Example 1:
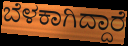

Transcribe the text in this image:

ಬೆಳಕಾಗಿದ್ದಾರೆ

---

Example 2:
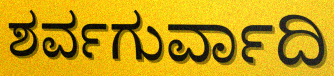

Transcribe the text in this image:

ಶರ್ವಗುರ್ವಾದಿ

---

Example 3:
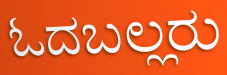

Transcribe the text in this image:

ಓದಬಲ್ಲರು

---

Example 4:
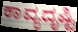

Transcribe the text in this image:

ಕಾವ್ಯದೃಷ್ಟಿ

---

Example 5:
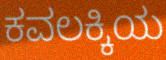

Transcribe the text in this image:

ಕವಲಕ್ಕಿಯ